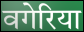
वगेरिया